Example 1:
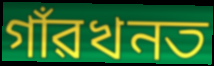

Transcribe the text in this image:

গাঁৱখনত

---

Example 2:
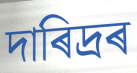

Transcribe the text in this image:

দাৰিদ্ৰৰ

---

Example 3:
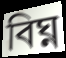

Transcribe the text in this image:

বিঘ্ন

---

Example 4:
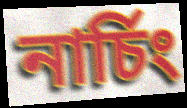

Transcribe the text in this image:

নাৰ্চিং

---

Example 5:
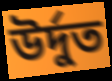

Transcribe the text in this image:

উৰ্দুত